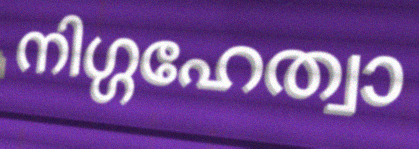
നിഗ്ഗഹേത്വാ